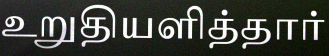
உறுதியளித்தார்